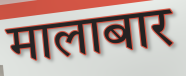
मालाबार